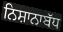
ਨਿਸ਼ਾਨਾਬੱਧ